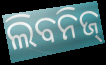
ଲିବନିଜ୍